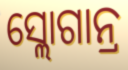
ସ୍ଲୋଗାନ୍ର